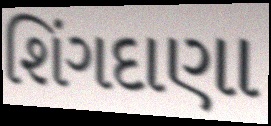
શિંગદાણા